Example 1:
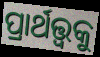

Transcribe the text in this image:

ପ୍ରାର୍ଥତ୍ତ୍ୱକୁ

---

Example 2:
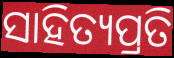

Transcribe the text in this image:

ସାହିତ୍ୟପ୍ରତି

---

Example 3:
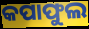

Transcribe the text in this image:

କପାଫୁଲ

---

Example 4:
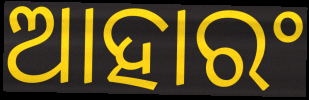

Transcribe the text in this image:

ଆହାରଂ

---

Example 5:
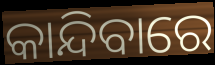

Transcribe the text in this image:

କାନ୍ଦିବାରେ